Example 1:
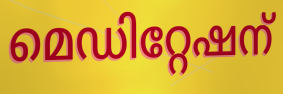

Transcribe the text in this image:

മെഡിറ്റേഷന്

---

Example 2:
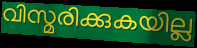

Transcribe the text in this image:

വിസ്മരിക്കുകയില്ല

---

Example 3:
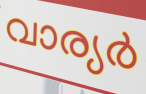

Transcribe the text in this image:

വാര്യർ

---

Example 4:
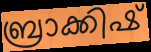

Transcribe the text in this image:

ബ്രാക്കിഷ്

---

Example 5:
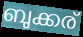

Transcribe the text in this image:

ബുക്കര്